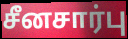
சீனசார்பு